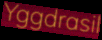
Yggdrasil